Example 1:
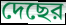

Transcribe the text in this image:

দেছের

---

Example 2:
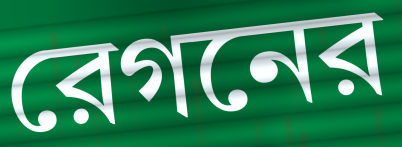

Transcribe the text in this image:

রেগনের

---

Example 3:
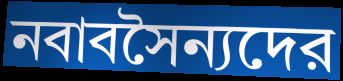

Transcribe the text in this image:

নবাবসৈন্যদের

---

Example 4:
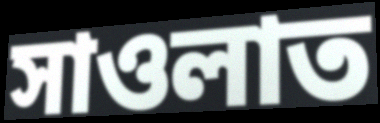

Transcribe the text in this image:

সাওলাত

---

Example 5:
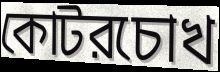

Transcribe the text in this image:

কোটরচোখ